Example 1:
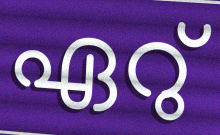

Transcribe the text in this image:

ഏറു്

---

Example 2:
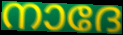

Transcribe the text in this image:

നാദേ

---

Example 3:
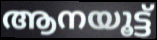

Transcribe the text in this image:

ആനയൂട്ട്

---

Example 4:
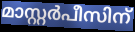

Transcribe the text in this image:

മാസ്റ്റർപീസിന്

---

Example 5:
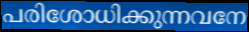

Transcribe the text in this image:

പരിശോധിക്കുന്നവനേ